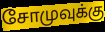
சோமுவுக்கு